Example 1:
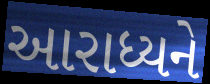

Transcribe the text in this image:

આરાધ્યને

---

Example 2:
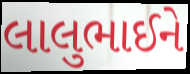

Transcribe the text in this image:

લાલુભાઈને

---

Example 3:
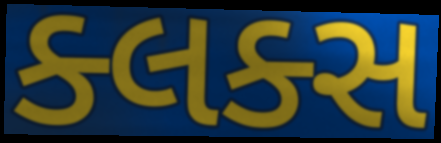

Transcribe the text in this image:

ક્લક્સ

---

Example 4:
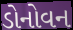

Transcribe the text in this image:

ડોનોવન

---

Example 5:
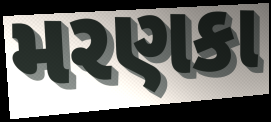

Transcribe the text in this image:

મરણકા